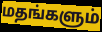
மதங்களும்